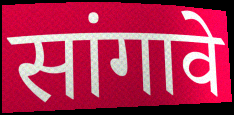
सांगावे